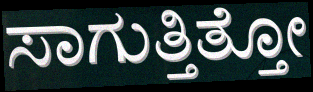
ಸಾಗುತ್ತಿತ್ತೋ